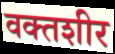
वक्तशीर